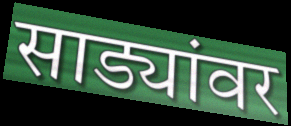
साड्यांवर